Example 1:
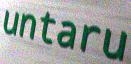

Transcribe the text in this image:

untaru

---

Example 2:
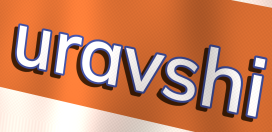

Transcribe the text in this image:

uravshi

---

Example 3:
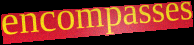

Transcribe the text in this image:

encompasses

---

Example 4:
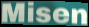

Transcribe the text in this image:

Misen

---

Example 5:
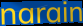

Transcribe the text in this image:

narain